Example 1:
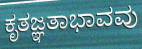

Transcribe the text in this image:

ಕೃತಜ್ಞತಾಭಾವವು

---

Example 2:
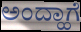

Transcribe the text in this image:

ಅಂದ್ಹಾಗೆ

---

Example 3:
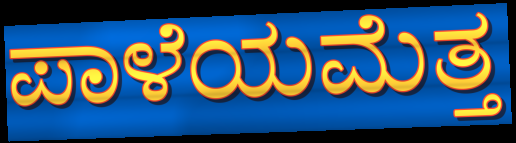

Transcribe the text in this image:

ಪಾಳೆಯಮೆತ್ತ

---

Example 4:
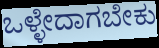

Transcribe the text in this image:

ಒಳ್ಳೇದಾಗಬೇಕು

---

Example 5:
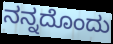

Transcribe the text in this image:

ನನ್ನದೊಂದು